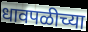
धावपळीच्या